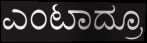
ಎಂಟಾದ್ರೂ